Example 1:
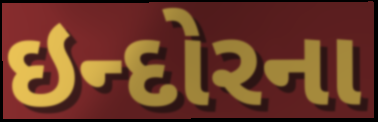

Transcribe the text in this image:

ઇન્દોરના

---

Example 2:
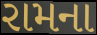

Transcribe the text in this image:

રામના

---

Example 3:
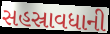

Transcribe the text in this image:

સહસ્રાવધાની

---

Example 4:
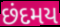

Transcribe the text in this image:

છંદમય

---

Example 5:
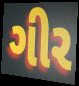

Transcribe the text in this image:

ગીર